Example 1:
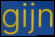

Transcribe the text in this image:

gijn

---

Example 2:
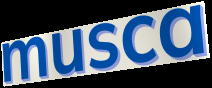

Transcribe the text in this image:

musca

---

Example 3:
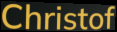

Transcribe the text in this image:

Christof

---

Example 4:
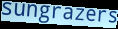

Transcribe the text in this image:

sungrazers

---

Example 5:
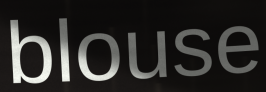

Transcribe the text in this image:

blouse